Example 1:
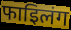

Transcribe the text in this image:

फाइिलंग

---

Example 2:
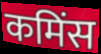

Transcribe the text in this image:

कमिंस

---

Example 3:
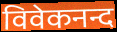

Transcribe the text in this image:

विवेकनन्द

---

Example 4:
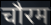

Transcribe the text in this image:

चौरम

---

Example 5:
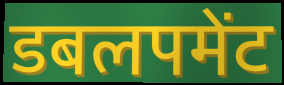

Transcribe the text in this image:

डबलपमेंट